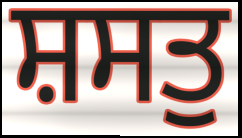
ਸ਼ਸਤੁ